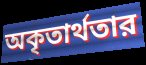
অকৃতার্থতার